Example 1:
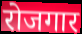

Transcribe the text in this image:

रोजगार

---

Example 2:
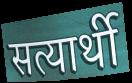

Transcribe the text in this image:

सत्यार्थी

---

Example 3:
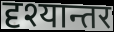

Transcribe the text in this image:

दृश्यान्तर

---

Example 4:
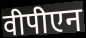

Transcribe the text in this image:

वीपीएन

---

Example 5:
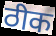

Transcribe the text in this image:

ठीक